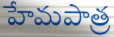
హేమపాత్ర